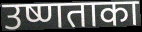
उष्णताका